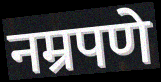
नम्रपणे